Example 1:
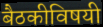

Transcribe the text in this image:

बैठकीविषयी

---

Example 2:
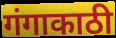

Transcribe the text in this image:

गंगाकाठी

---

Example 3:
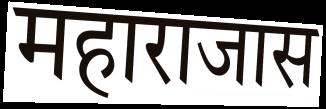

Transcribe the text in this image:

महाराजास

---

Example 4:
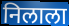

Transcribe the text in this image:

निलाला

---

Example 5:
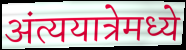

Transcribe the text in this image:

अंत्ययात्रेमध्ये